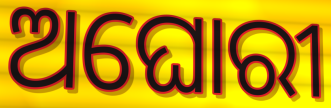
ଅଘୋରୀ